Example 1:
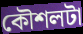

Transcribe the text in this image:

কৌশলটা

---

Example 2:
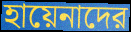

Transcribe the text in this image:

হায়েনাদের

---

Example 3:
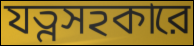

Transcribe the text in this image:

যত্নসহকারে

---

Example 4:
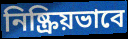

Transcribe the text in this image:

নিষ্ক্রিয়ভাবে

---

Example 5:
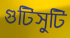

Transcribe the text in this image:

গুটিসুটি